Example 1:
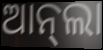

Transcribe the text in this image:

ଆନ୍‌ଲା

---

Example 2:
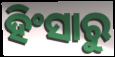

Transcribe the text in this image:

ହିଂସାରୁ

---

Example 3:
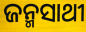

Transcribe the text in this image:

ଜନ୍ମସାଥୀ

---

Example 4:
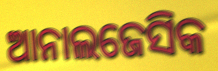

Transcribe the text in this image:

ଆନାଲଜେସିକ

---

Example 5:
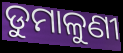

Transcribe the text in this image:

ଡୁମାଳୁଣୀ